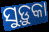
ସୁଡ଼ୁକା